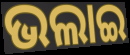
ଭଲାଇ